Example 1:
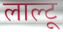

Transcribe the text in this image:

लाल्टू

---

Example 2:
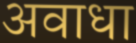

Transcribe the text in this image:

अवाधा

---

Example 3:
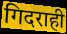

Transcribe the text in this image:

गिदराही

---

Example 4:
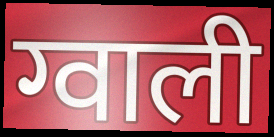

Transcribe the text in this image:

ग्वाली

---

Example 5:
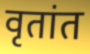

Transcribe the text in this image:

वृतांत